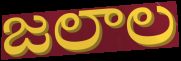
జలాల